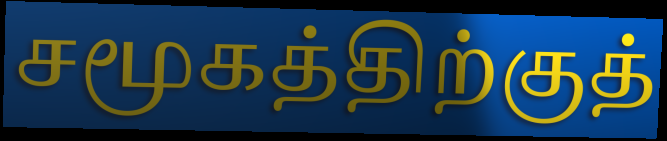
சமூகத்திற்குத்